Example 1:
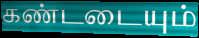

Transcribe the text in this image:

கண்டடையும்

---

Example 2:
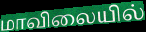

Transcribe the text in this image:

மாவிலையில்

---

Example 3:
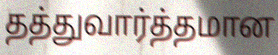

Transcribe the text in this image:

தத்துவார்த்தமான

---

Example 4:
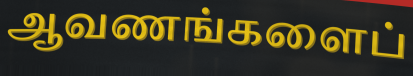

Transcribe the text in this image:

ஆவணங்களைப்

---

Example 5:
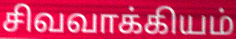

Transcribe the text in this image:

சிவவாக்கியம்